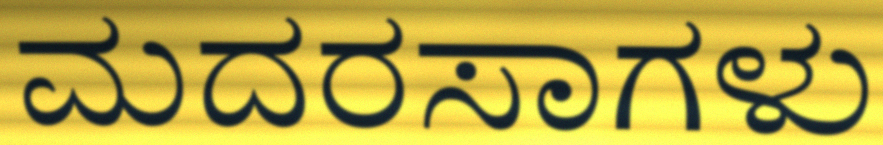
ಮದರಸಾಗಳು